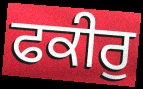
ਫਕੀਰੁ